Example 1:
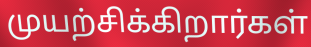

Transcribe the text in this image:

முயற்சிக்கிறார்கள்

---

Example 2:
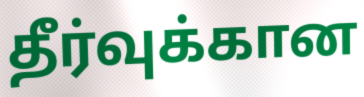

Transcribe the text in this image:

தீர்வுக்கான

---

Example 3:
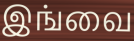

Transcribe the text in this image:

இங்வை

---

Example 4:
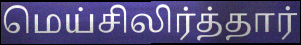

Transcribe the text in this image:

மெய்சிலிர்த்தார்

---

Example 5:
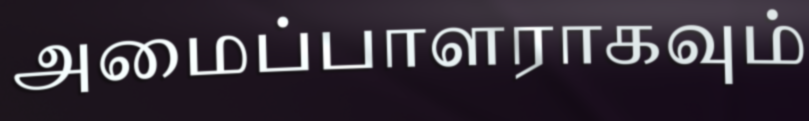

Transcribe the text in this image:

அமைப்பாளராகவும்